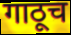
गाठूच